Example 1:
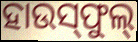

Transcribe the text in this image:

ହାଉସ୍‌ଫୁଲ୍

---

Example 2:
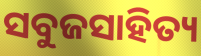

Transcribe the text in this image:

ସବୁଜସାହିତ୍ୟ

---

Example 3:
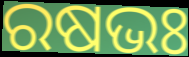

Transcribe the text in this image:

ରଷଭଃ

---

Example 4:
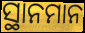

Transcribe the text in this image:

ସ୍ଥାନମାନ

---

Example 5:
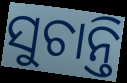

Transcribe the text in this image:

ସୁଚାନ୍ତି